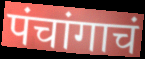
पंचांगाचं